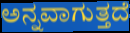
ಅನ್ನವಾಗುತ್ತದೆ